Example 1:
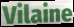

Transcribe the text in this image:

Vilaine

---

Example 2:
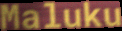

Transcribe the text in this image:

Maluku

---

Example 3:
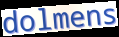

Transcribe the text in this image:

dolmens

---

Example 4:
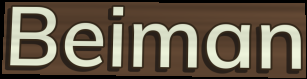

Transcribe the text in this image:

Beiman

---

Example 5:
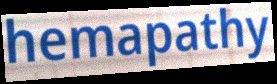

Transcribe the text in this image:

hemapathy